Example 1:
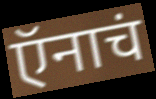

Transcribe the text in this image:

ऍनाचं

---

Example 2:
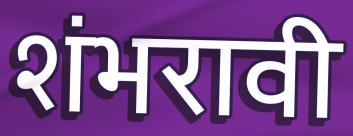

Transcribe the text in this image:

शंभरावी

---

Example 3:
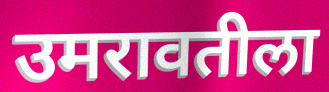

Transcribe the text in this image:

उमरावतीला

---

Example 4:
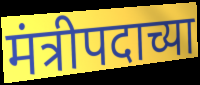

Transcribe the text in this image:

मंत्रीपदाच्या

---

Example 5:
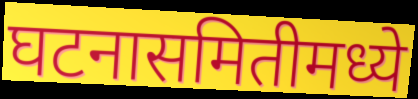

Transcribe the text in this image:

घटनासमितीमध्ये